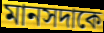
মানসদাকে